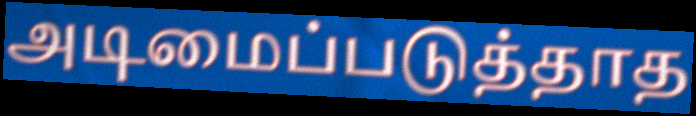
அடிமைப்படுத்தாத